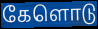
கேளொடு